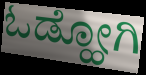
ಓಡ್ಹೋಗಿ